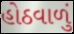
હોઠવાળું